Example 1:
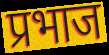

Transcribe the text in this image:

प्रभाज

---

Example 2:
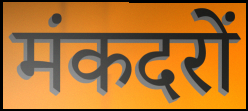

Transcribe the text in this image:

मंकदरों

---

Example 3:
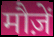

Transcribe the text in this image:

मौज़ें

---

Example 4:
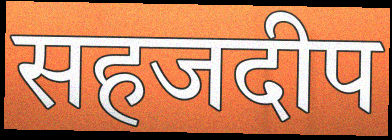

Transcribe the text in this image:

सहजदीप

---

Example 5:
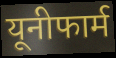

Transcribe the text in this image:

यूनीफार्म